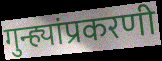
गुन्ह्यांप्रकरणी